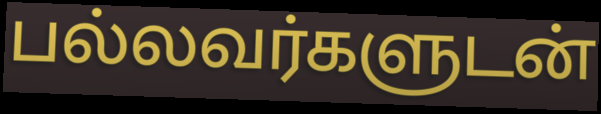
பல்லவர்களுடன்